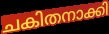
ചകിതനാക്കി